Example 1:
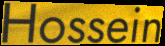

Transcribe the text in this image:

Hossein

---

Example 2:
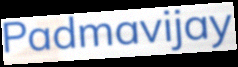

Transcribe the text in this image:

Padmavijay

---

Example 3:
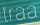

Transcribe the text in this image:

traa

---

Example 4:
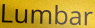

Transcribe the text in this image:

Lumbar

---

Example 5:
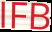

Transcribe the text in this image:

IFB